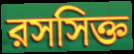
রসসিক্ত